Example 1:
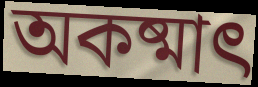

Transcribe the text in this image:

অকষ্মাৎ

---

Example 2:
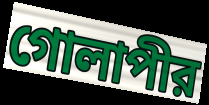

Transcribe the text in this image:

গোলাপীর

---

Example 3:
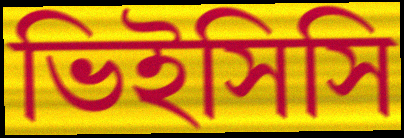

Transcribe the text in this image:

ভিইসিসি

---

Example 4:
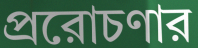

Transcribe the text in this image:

প্ররোচণার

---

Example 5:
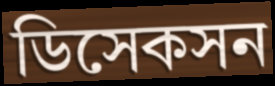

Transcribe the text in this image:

ডিসেকসন